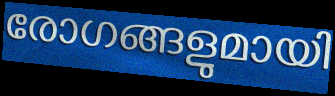
രോഗങ്ങളുമായി